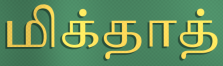
மிக்தாத்